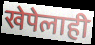
खेपेलाही